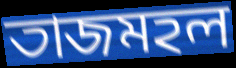
তাজমহল